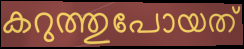
കറുത്തുപോയത്